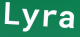
Lyra